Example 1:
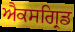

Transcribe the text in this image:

ਐਕਸਗ੍ਰਿਡ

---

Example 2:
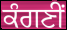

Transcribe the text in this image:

ਕੰਗਣੀਂ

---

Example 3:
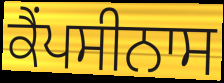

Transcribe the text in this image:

ਕੈਂਪਸੀਨਾਸ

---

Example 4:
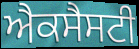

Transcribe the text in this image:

ਐਕਸੈਸਟੀ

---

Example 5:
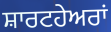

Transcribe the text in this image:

ਸ਼ਾਰਟਹੇਅਰਾਂ